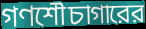
গণশৌচাগারের